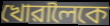
খোৱালৈকে